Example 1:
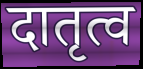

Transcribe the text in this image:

दातृत्व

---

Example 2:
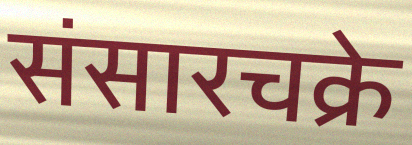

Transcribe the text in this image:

संसारचक्रे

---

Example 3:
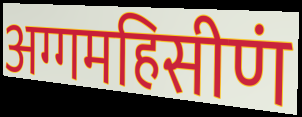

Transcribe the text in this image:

अग्गमहिसीणं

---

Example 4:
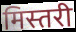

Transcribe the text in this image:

मिस्तरी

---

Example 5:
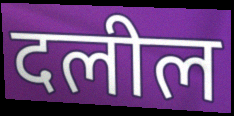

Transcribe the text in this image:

दलील